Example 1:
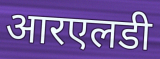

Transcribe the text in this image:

आरएलडी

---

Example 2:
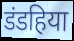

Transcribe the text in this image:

डंडहिया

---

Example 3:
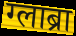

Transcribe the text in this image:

ग्लाब्रा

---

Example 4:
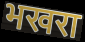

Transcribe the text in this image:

भखरा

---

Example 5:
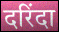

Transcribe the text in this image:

दरिंदा